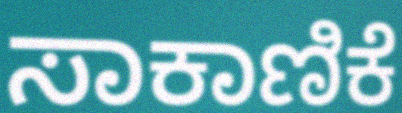
ಸಾಕಾಣಿಕೆ